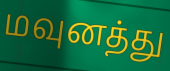
மவுனத்து